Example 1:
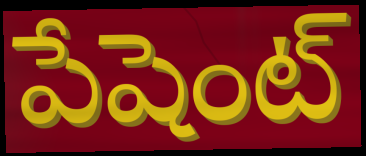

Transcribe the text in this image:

పేషెంట్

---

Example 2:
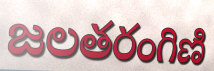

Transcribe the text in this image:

జలతరంగిణి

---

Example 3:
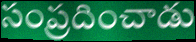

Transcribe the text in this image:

సంప్రదించాడు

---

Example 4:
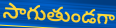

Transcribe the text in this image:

సాగుతుండగా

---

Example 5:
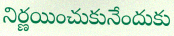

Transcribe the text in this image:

నిర్ణయించుకునేందుకు